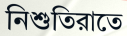
নিশুতিরাতে